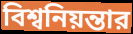
বিশ্বনিয়ন্তার